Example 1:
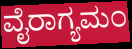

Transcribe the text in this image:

ವೈರಾಗ್ಯಮಂ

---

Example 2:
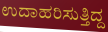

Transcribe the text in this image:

ಉದಾಹರಿಸುತ್ತಿದ್ದ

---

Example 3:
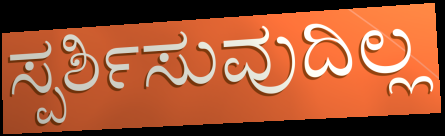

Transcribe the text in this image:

ಸ್ಪರ್ಶಿಸುವುದಿಲ್ಲ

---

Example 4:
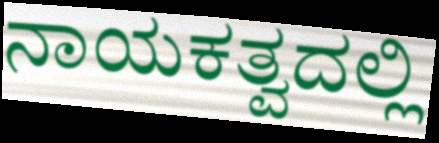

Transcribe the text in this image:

ನಾಯಕತ್ವದಲ್ಲಿ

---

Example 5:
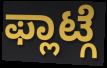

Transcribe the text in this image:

ಫ್ಲಾಟ್ಗೆ